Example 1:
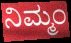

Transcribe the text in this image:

ನಿಮ್ಮಂ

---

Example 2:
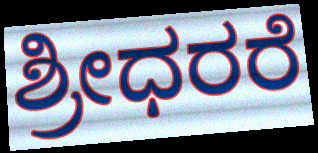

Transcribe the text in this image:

ಶ್ರೀಧರರೆ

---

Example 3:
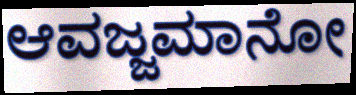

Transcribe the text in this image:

ಆವಜ್ಜಮಾನೋ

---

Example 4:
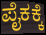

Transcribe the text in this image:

ಪೈಕಕ್ಕೆ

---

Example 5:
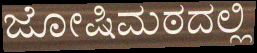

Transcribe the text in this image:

ಜೋಷಿಮಠದಲ್ಲಿ